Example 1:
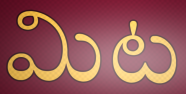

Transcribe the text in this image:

మిట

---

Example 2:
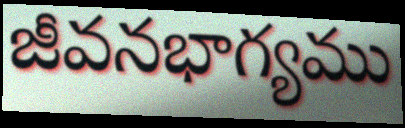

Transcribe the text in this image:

జీవనభాగ్యము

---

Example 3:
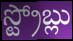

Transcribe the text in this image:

స్ట్రోబ్లు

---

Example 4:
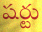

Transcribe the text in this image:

షర్టు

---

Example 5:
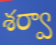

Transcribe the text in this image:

శర్వా